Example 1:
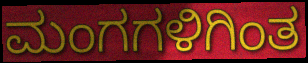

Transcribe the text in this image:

ಮಂಗಗಳಿಗಿಂತ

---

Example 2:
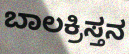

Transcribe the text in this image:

ಬಾಲಕ್ರಿಸ್ತನ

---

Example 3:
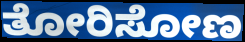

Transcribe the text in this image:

ತೋರಿಸೋಣ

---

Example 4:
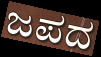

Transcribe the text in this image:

ಜಪದ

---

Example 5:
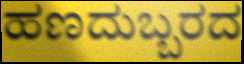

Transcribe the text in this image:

ಹಣದುಬ್ಬರದ